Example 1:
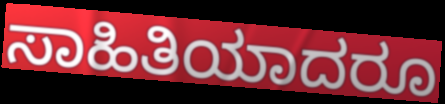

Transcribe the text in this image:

ಸಾಹಿತಿಯಾದರೂ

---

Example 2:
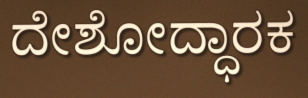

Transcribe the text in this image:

ದೇಶೋದ್ಧಾರಕ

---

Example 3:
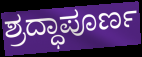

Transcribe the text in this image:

ಶ್ರದ್ಧಾಪೂರ್ಣ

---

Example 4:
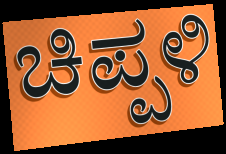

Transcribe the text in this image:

ಚಿಪ್ಪಳಿ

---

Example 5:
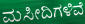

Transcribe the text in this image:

ಮಸೀದಿಗಳಿವೆ